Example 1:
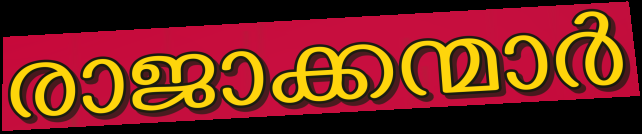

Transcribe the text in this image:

രാജാക്കന്മാർ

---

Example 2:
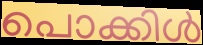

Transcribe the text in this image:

പൊക്കിൾ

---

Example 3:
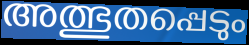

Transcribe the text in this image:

അത്ഭുതപ്പെടും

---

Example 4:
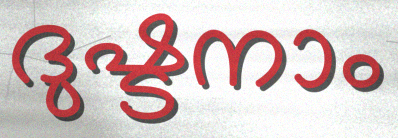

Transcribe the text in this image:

ദുഷ്ടനാം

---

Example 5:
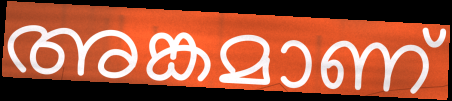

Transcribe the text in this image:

അങ്കമാണ്